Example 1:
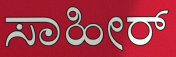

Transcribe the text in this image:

ಸಾಹೀರ್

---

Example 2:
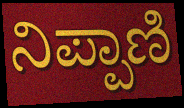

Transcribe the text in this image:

ನಿಪ್ಪಾಣಿ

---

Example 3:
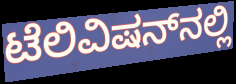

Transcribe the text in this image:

ಟೆಲಿವಿಷನ್‌ನಲ್ಲಿ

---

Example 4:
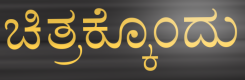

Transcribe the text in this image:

ಚಿತ್ರಕ್ಕೊಂದು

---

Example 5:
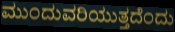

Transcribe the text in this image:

ಮುಂದುವರಿಯುತ್ತದೆಂದು